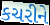
કચરીને